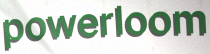
powerloom